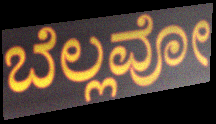
ಬೆಲ್ಲವೋ